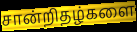
சான்றிதழ்களை